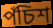
পঁচিশ